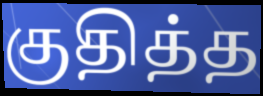
குதித்த